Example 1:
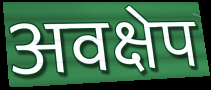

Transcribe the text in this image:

अवक्षेप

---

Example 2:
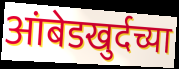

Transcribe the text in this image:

आंबेडखुर्दच्या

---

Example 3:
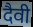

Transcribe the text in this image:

दैवी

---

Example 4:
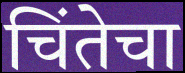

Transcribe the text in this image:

चिंतेचा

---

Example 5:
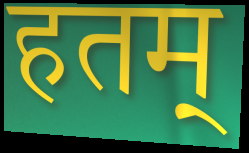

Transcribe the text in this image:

हतम्